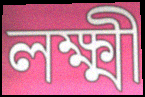
লক্ষ্মী